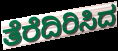
ತೆರೆದಿರಿಸಿದ